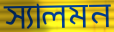
স্যালমন